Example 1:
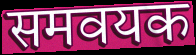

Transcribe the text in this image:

समवयक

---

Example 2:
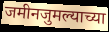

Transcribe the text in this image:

जमीनजुमल्याच्या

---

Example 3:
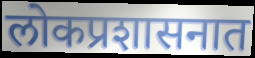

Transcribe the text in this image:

लोकप्रशासनात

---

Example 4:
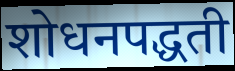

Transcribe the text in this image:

शोधनपद्धती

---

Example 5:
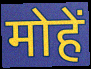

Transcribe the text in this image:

मोहें